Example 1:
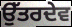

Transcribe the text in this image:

ਉੱਤਰਦੇਵ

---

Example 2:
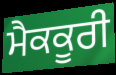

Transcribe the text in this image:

ਮੈਕਕੂਰੀ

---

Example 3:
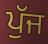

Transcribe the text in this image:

ਪੁੱਜ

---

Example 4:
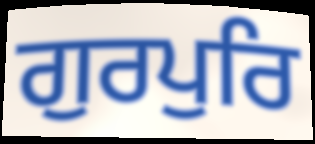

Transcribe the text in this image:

ਗੁਰਪੁਰਿ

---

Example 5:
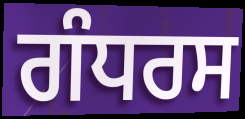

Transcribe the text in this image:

ਗੰਧਰਸ